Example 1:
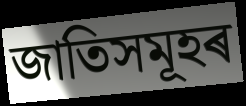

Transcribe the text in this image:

জাতিসমূহৰ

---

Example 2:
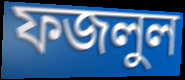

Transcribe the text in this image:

ফজলুল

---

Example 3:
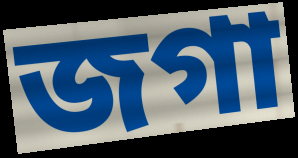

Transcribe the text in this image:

জগা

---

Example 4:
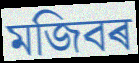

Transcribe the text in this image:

মজিবৰ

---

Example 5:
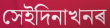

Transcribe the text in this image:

সেইদিনাখনৰ